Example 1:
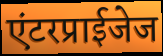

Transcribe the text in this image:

एंटरप्राईजेज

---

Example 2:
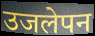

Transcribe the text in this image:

उजलेपन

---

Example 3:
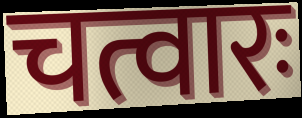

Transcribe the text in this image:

चत्वारः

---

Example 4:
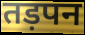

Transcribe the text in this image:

तड़पन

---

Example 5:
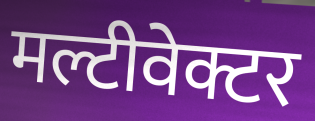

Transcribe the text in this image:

मल्टीवेक्टर